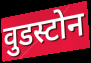
वुडस्टोन